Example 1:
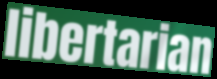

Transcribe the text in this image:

libertarian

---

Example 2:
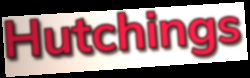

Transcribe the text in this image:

Hutchings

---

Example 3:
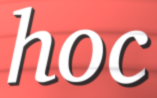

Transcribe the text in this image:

hoc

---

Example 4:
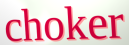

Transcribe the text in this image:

choker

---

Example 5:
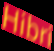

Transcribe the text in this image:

Hibri